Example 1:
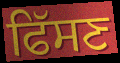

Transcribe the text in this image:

ਫਿੱਸਣ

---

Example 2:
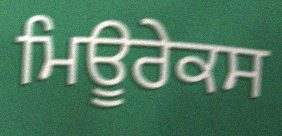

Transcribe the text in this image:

ਮਿਊਰੇਕਸ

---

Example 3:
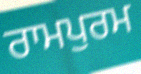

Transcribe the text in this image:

ਰਾਮਪੁਰਮ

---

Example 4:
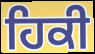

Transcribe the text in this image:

ਹਿਕੀ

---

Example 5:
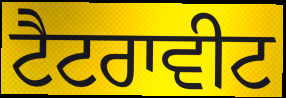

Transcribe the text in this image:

ਟੈਟਰਾਵੀਟ